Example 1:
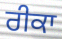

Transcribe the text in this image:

ਰੀਕਾ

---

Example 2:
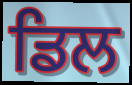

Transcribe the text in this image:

ਡਿਲ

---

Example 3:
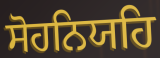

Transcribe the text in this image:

ਸੋਹਨਿਯਹਿ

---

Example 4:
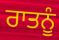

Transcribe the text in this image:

ਰਾਤਨੂੰ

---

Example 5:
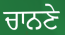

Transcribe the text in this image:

ਚਾਨਣੇ